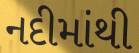
નદીમાંથી